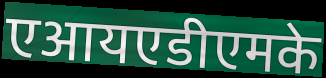
एआयएडीएमके